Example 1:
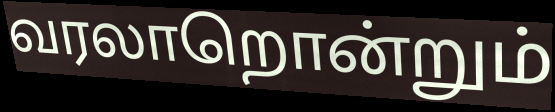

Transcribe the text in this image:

வரலாறொன்றும்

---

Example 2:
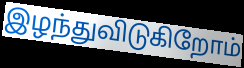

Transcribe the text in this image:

இழந்துவிடுகிறோம்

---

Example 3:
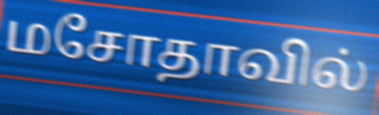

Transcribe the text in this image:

மசோதாவில்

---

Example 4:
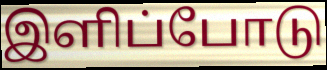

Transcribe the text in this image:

இளிப்போடு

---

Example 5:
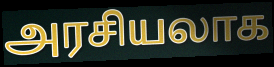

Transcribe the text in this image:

அரசியலாக